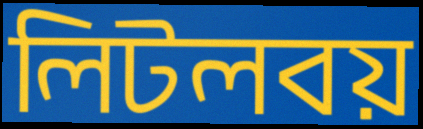
লিটলবয়